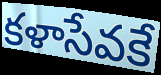
కళాసేవకే